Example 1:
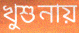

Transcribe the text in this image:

খুশুনায়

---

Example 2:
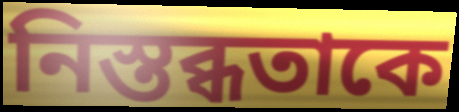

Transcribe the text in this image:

নিস্তব্ধতাকে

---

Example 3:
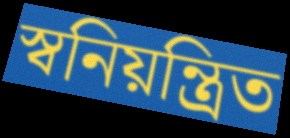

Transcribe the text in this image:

স্বনিয়ন্ত্রিত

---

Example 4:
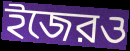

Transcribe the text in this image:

ইজেরও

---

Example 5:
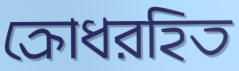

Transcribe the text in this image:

ক্রোধরহিত